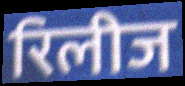
रिलीज